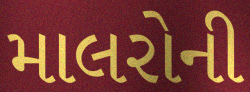
માલરોની